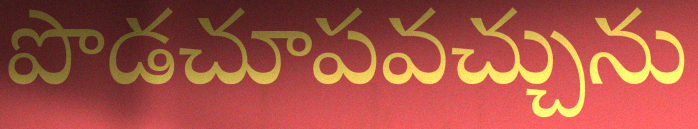
పొడచూపవచ్చును